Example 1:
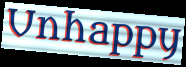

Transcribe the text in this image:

Unhappy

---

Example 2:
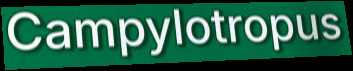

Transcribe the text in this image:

Campylotropus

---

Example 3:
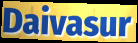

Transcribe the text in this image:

Daivasur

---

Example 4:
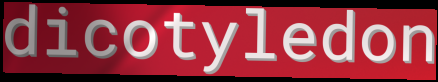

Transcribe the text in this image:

dicotyledon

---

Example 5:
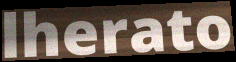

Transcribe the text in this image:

lherato